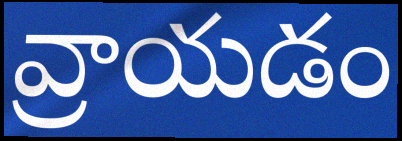
వ్రాయడం